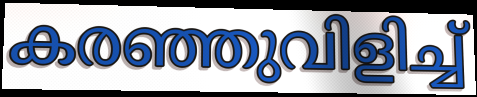
കരഞ്ഞുവിളിച്ച്